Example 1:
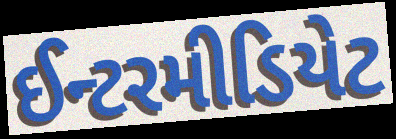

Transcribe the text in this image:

ઈન્ટરમીડિયેટ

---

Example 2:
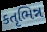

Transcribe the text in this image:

કતૃભિન્ન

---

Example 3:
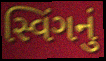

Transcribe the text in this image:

સ્વિંગનું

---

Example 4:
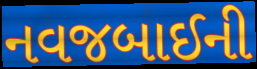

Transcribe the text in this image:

નવજબાઈની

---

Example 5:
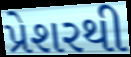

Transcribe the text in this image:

પ્રેશરથી